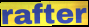
rafter